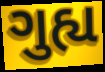
ગુહ્ય